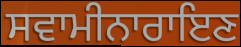
ਸਵਾਮੀਨਾਰਾਇਣ